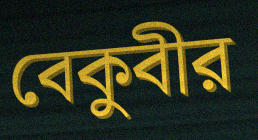
বেকুবীর